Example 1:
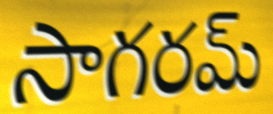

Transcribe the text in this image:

సాగరమ్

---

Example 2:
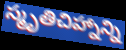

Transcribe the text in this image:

స్మృతిచిహ్నాన్ని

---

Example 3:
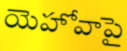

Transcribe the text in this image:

యెహోవాపై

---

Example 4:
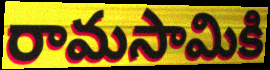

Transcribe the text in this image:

రామసామికి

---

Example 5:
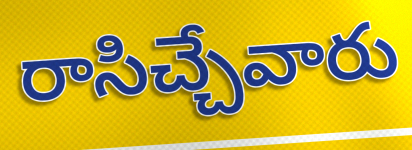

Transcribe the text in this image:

రాసిచ్చేవారు